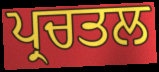
ਪ੍ਰਚਤਲ